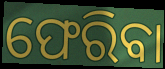
ଫେରିବା